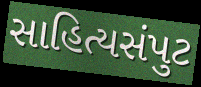
સાહિત્યસંપુટ